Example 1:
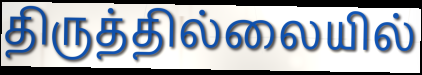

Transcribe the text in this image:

திருத்தில்லையில்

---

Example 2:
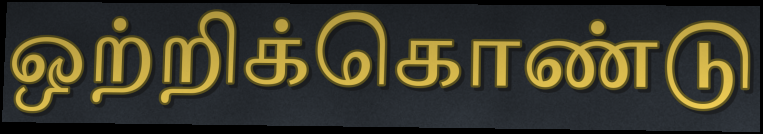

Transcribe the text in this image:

ஒற்றிக்கொண்டு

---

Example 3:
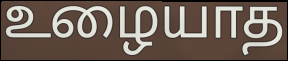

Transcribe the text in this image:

உழையாத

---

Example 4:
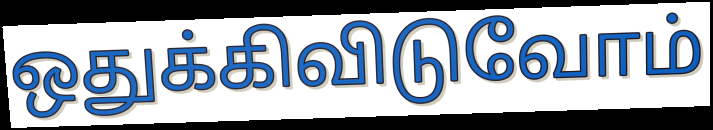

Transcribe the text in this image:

ஒதுக்கிவிடுவோம்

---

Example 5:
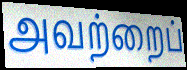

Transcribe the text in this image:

அவற்றைப்